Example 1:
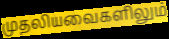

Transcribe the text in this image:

முதலியவைகளிலும்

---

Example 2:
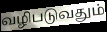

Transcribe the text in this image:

வழிபடுவதும்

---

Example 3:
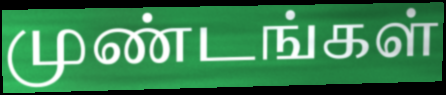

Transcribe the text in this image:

முண்டங்கள்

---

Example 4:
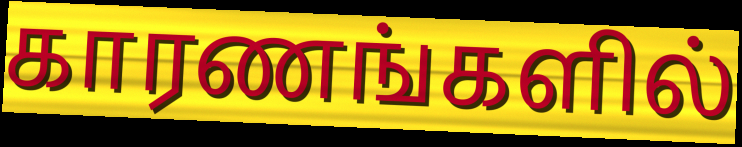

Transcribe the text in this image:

காரணங்களில்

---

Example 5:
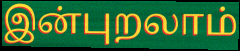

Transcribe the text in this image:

இன்புறலாம்